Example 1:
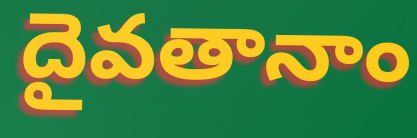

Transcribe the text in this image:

దైవతానాం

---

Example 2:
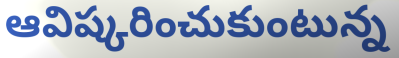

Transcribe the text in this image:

ఆవిష్కరించుకుంటున్న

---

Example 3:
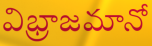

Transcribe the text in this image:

విభ్రాజమానో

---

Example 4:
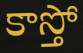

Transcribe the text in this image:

కాస్తో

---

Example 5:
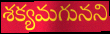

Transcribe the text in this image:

శక్యమగునని